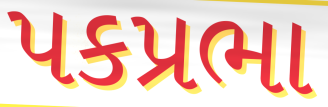
પકપ્રભા